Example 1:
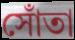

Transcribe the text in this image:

সোঁতা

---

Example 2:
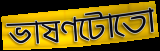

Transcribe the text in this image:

ভাষণটোতো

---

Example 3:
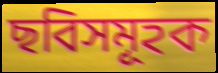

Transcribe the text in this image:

ছবিসমূহক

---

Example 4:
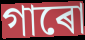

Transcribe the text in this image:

গাৰো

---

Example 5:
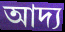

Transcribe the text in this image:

আদ্য